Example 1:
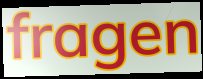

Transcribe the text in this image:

fragen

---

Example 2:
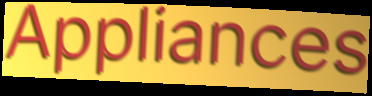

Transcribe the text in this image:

Appliances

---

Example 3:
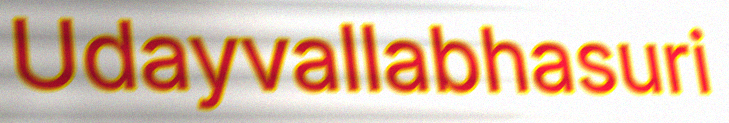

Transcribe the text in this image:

Udayvallabhasuri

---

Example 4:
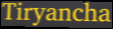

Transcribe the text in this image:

Tiryancha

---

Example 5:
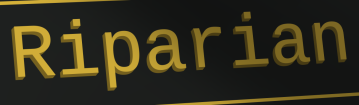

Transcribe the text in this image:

Riparian